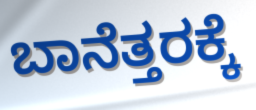
ಬಾನೆತ್ತರಕ್ಕೆ